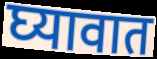
घ्यावात